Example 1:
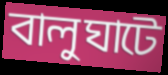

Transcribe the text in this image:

বালুঘাটে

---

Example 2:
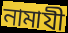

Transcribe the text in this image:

নামাযী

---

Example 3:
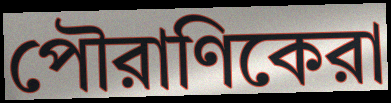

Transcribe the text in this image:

পৌরাণিকেরা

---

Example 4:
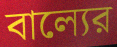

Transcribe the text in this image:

বাল্যের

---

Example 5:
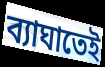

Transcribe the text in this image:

ব্যাঘাতেই